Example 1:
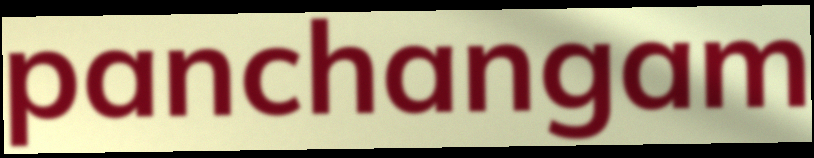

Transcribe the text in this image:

panchangam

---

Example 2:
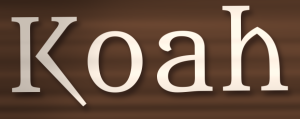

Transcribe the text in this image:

Koah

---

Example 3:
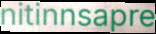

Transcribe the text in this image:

nitinnsapre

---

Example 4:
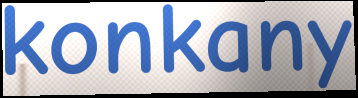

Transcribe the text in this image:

konkany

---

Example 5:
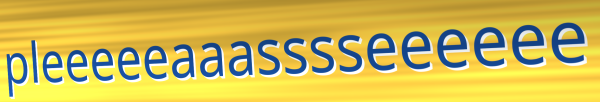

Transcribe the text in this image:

pleeeeeaaasssseeeeee